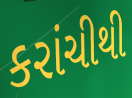
કરાંચીથી